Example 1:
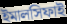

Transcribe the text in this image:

ইমালসিফাই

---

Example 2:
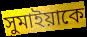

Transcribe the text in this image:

সুমাইয়াকে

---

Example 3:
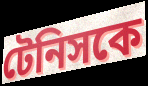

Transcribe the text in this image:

টেনিসকে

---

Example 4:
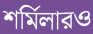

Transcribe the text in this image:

শর্মিলারও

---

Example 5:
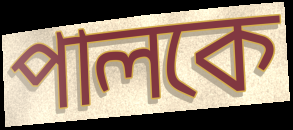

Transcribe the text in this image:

পালকে